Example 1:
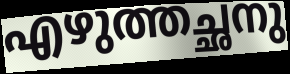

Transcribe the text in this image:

എഴുത്തച്ഛനു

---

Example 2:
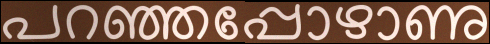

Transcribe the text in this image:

പറഞ്ഞപ്പോഴാണു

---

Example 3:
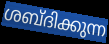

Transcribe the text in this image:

ശബ്ദിക്കുന്ന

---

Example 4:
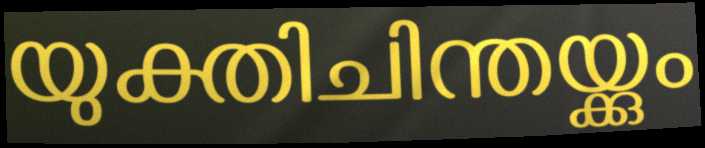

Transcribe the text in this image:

യുക്തിചിന്തയ്ക്കും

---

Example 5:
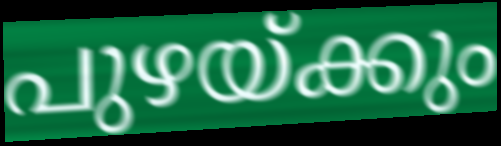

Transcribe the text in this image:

പുഴയ്ക്കും